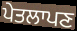
ਪੇਤਲਾਪਣ